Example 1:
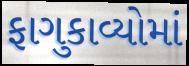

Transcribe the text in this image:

ફાગુકાવ્યોમાં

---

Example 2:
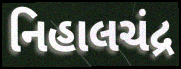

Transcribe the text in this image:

નિહાલચંદ્ર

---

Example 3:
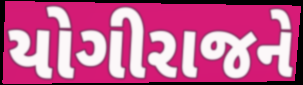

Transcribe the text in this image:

યોગીરાજને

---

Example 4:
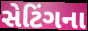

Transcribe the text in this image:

સેટિંગના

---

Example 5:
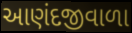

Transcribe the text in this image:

આણંદજીવાળા